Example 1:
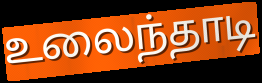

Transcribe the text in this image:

உலைந்தாடி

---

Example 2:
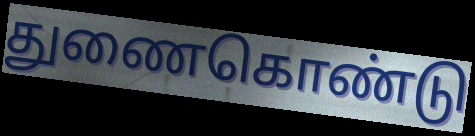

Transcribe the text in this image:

துணைகொண்டு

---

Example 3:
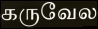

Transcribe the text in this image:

கருவேல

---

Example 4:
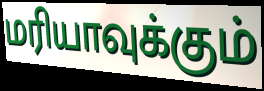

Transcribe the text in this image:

மரியாவுக்கும்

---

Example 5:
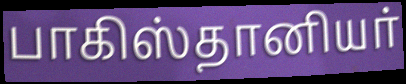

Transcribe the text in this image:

பாகிஸ்தானியர்